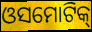
ଓସମୋଟିକ୍